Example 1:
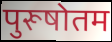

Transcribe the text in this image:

पुरूषोतम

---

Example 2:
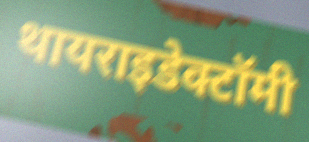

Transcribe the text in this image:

थायराइडेक्टॉमी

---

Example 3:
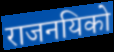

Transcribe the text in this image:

राजनयिको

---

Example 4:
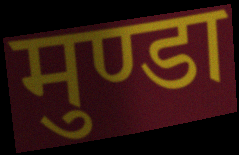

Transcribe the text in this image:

मुण्डा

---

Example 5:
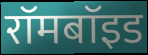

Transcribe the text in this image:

रॉमबॉइड